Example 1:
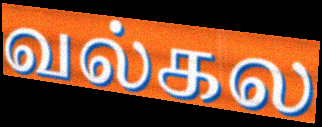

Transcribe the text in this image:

வல்கல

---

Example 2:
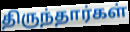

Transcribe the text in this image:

திருந்தார்கள்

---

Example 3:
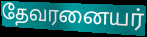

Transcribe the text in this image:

தேவரனையர்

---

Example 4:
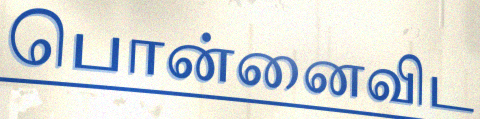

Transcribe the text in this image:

பொன்னைவிட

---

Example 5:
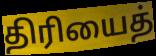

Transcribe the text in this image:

திரியைத்